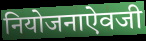
नियोजनाऐवजी